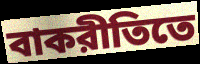
বাকরীতিতে